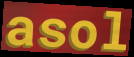
asol